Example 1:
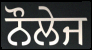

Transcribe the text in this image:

ਨੌਲੇਜ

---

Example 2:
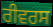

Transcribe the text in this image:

ਰੀਵਰਸ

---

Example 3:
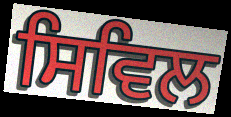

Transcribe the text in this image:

ਸਿਵਿਲ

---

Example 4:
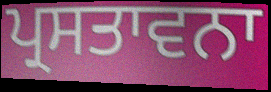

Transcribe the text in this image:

ਪ੍ਰਸਤਾਵਨਾ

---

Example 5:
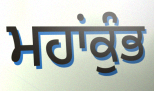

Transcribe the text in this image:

ਮਹਾਂਕੁੰਭ